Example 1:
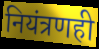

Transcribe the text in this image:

नियंत्रणही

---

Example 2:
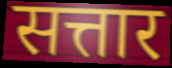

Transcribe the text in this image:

सत्तार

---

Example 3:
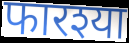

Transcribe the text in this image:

फारश्या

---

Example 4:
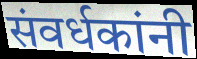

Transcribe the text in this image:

संवर्धकांनी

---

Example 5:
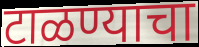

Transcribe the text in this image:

टाळण्याचा